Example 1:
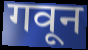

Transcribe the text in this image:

गवून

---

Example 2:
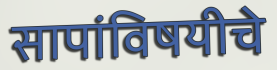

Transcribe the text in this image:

सापांविषयीचे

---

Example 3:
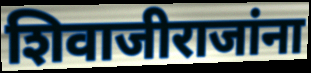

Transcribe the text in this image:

शिवाजीराजांना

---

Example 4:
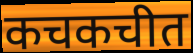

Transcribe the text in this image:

कचकचीत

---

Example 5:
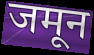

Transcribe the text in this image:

जमून